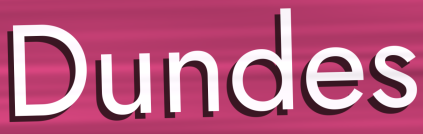
Dundes